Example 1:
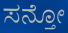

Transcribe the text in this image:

ಸನ್ತೋ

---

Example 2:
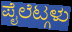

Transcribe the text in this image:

ಪೈಲೆಟ್ಗಳು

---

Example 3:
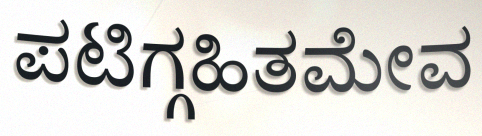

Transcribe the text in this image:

ಪಟಿಗ್ಗಹಿತಮೇವ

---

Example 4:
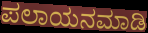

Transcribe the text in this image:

ಪಲಾಯನಮಾಡಿ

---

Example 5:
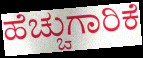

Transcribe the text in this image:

ಹೆಚ್ಚುಗಾರಿಕೆ